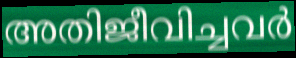
അതിജീവിച്ചവർ